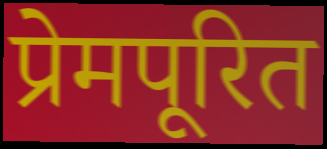
प्रेमपूरित